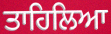
ਤਾਹਿਲਿਆ